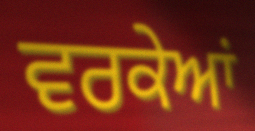
ਵਰਕੇਆਂ